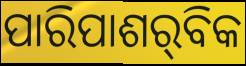
ପାରିପାଶର୍‌ବିକ